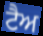
ਟੈਅ